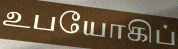
உபயோகிப்